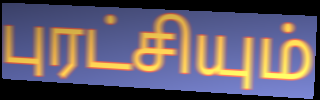
புரட்சியும்